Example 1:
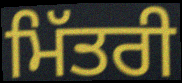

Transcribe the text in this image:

ਮਿੱਤਰੀ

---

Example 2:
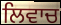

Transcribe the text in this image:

ਲਿਵਾਚ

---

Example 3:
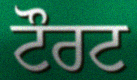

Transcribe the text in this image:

ਟੌਰਟ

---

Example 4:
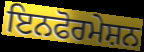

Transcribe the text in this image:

ਇਨਫੋਰਮੇਸ਼ਨ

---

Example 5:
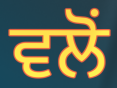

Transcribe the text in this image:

ਵਲੋੰ